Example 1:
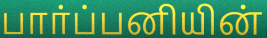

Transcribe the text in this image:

பார்ப்பனியின்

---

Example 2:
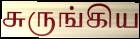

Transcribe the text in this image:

சுருங்கிய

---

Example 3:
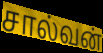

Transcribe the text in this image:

சால்வன்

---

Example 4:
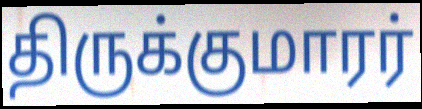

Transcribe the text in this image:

திருக்குமாரர்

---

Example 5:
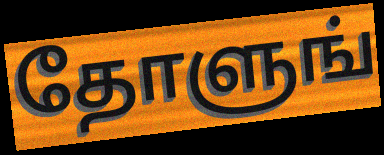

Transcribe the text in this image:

தோளுங்